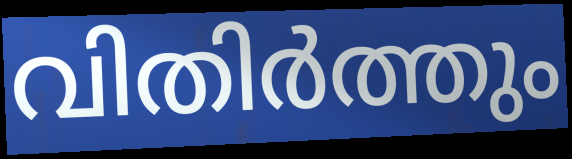
വിതിർത്തും